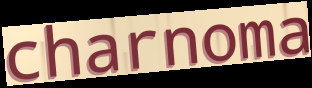
charnoma